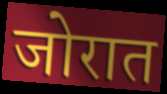
जोरात